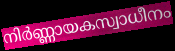
നിർണ്ണായകസ്വാധീനം